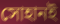
সোহানই